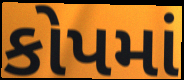
કોપમાં